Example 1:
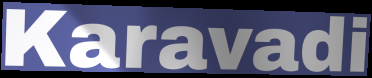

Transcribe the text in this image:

Karavadi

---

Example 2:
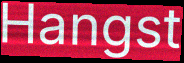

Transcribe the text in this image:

Hangst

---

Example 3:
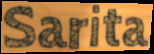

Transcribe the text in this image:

Sarita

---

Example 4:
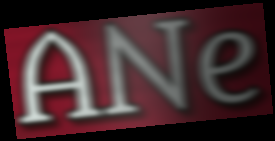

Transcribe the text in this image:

ANe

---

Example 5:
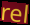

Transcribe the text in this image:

rel